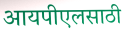
आयपीएलसाठी